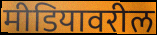
मीडियावरील